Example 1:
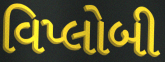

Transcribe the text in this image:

વિપ્લોબી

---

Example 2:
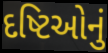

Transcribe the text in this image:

દષ્ટિઓનું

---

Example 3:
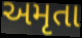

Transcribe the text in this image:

અમૃતા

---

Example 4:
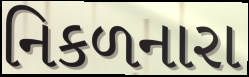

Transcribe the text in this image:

નિકળનારા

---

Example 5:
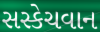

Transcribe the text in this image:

સસ્કેચવાન